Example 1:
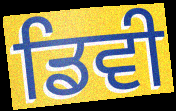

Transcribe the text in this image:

ਡਿਵੀ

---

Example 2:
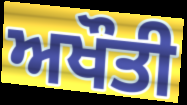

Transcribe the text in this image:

ਅਖੌਤੀ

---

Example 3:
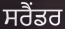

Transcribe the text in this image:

ਸਰੈਂਡਰ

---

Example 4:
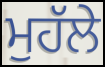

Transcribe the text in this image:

ਮੁਹੱਲੇ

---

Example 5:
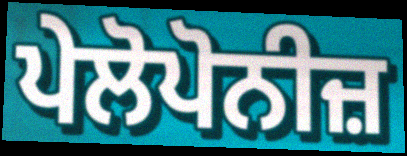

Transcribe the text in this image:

ਪੇਲੋਪੋਨੀਜ਼